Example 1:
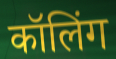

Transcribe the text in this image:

कॉलिंग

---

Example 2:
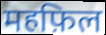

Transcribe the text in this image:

महफ़िल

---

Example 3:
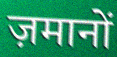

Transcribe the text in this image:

ज़मानों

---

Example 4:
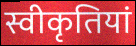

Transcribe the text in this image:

स्वीकृतियां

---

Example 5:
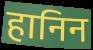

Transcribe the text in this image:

हानिन